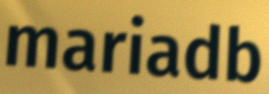
mariadb